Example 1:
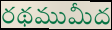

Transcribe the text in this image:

రథముమీద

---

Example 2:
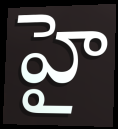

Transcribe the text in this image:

హై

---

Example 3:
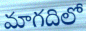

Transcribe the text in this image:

మాగదిలో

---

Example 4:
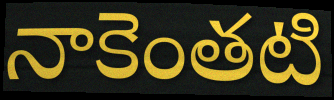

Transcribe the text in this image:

నాకెంతటి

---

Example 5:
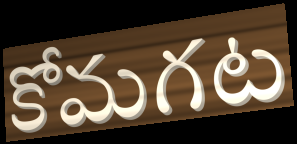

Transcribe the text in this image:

కోమగట